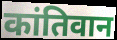
कांतिवान